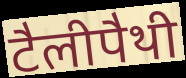
टैलीपैथी